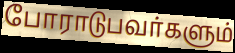
போராடுபவர்களும்